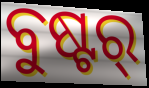
ବୁଷ୍ଟର୍